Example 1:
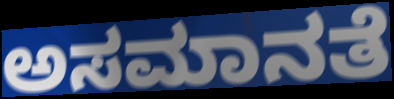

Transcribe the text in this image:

ಅಸಮಾನತೆ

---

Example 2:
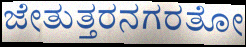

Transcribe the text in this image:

ಜೇತುತ್ತರನಗರತೋ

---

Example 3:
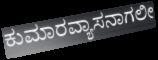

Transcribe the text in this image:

ಕುಮಾರವ್ಯಾಸನಾಗಲೀ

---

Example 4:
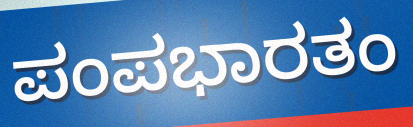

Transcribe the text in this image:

ಪಂಪಭಾರತಂ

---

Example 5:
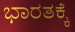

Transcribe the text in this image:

ಭಾರತಕ್ಕೆ